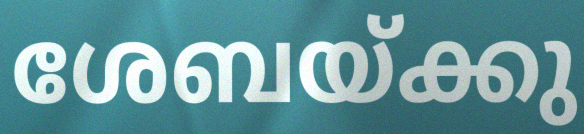
ശേബയ്ക്കു